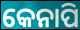
କେନାପି